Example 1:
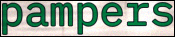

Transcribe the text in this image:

pampers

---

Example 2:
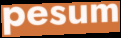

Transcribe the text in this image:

pesum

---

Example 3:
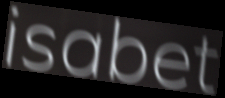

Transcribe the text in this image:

isabet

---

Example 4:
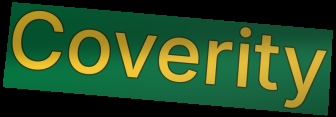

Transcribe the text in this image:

Coverity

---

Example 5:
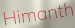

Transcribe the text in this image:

Himanth